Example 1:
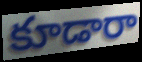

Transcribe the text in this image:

కూడారా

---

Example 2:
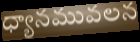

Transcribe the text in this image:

ధ్యానమువలన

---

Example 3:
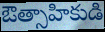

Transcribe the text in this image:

ఔత్సాహికుడి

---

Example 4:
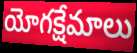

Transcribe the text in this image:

యోగక్షేమాలు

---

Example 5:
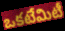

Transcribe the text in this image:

ఒకటేమిటీ